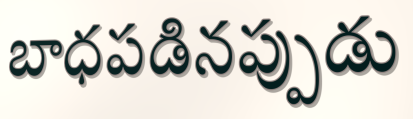
బాధపడినప్పుడు